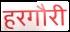
हरगौरी